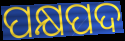
ପକ୍ଷପଦ